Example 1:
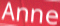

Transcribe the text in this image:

Anne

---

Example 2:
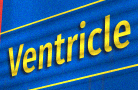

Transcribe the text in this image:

Ventricle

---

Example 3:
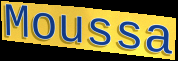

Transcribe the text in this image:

Moussa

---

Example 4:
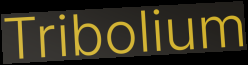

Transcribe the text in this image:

Tribolium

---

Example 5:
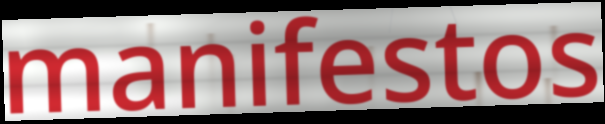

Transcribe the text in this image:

manifestos